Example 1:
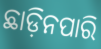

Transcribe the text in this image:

ଛାଡ଼ିନପାରି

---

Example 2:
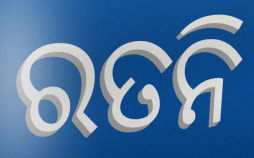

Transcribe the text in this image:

ରତନି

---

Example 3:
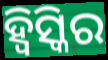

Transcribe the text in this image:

ହ୍ୱିସ୍କିର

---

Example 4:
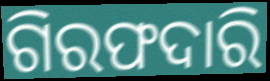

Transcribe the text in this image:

ଗିରଫଦାରି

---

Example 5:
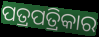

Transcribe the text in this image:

ପତ୍ରପତ୍ରିକାର